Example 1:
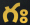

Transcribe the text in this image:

గః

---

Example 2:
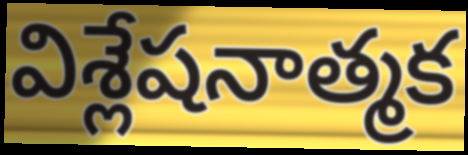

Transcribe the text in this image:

విశ్లేషనాత్మక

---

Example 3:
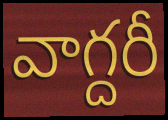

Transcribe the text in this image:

వాగ్దరీ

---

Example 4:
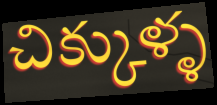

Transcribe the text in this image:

చిక్కుళ్ళ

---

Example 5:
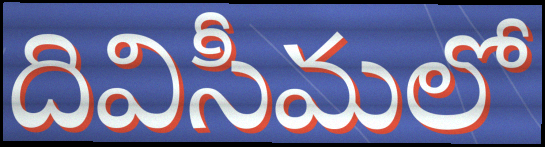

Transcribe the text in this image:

దివిసీమలో